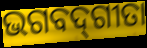
ଭଗବଦ୍‍ଗୀତା